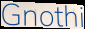
Gnothi